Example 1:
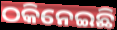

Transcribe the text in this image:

ଠକିନେଇଛି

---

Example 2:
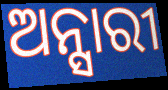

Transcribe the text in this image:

ଅନ୍ସାରୀ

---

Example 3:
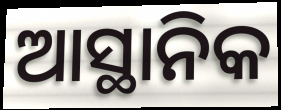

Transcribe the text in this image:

ଆସ୍ଥାନିକ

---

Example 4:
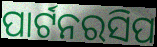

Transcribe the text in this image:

ପାର୍ଟନରସିପ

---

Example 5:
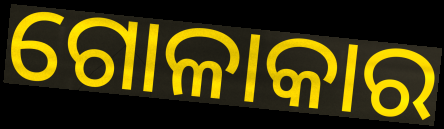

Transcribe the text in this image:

ଗୋଳାକାର